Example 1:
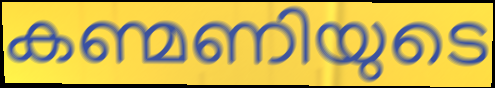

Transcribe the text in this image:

കണ്മണിയുടെ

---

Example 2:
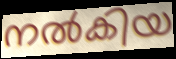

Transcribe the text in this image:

നൽകിയ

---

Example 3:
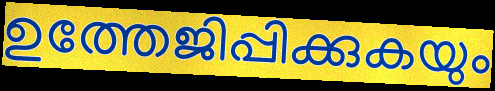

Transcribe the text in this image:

ഉത്തേജിപ്പിക്കുകയും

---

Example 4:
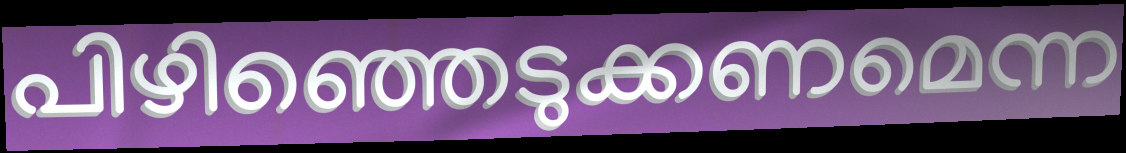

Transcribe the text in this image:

പിഴിഞ്ഞെടുക്കണമെന്ന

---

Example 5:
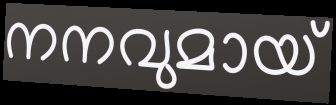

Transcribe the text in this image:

നനവുമായ്